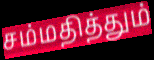
சம்மதித்தும்